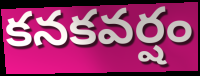
కనకవర్షం